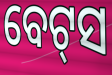
ବେଟ୍‍ସ